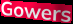
Gowers